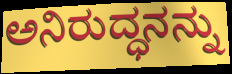
ಅನಿರುದ್ಧನನ್ನು